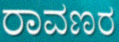
ರಾವಣರ